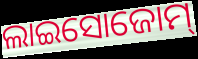
ଲାଇସୋଜୋମ୍